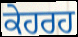
ਕੇਹਰਹ